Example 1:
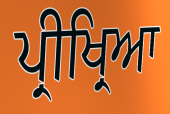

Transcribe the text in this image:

ਪ੍ਰੀਖ੍ਰਿਆ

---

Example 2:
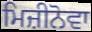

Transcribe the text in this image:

ਮਿਜ਼ੀਨੋਵਾ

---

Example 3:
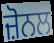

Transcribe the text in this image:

ਜ਼ੋਨਲ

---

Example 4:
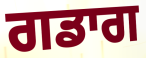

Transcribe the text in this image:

ਗਡਾਗ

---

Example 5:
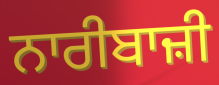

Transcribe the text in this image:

ਨਾਰੀਬਾਜ਼ੀ